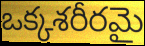
ఒక్కశరీరమై